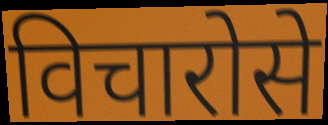
विचारोसे